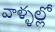
వాళ్ళల్లో